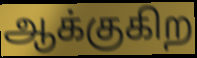
ஆக்குகிற